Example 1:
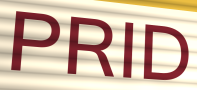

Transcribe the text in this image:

PRID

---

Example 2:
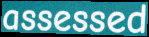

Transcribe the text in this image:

assessed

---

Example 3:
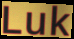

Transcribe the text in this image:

Luk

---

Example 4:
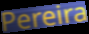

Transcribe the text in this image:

Pereira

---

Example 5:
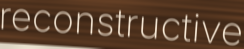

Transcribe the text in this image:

reconstructive